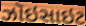
ઝૉઇસાઇટ